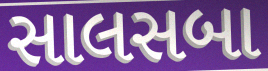
સાલસબા